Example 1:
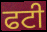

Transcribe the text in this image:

ਫਟੀ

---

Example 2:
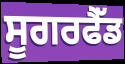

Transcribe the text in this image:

ਸੂਗਰਫੈੱਡ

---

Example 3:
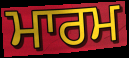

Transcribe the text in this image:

ਮਾਰਮ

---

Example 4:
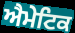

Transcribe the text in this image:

ਐਮੇਟਿਕ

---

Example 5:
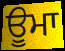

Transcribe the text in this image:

ਊਮਾ